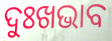
ଦୁଃଖଭାବ